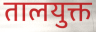
तालयुक्त